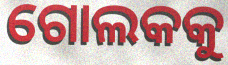
ଗୋଲକକୁ